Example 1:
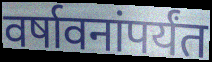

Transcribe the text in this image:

वर्षावनांपर्यंत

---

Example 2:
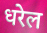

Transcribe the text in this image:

धरेल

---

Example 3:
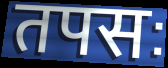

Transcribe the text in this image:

तपसः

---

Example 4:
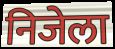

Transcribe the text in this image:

निजेला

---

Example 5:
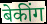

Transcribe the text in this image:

बेकींग